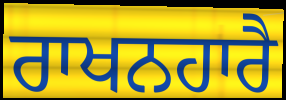
ਰਾਖਨਹਾਰੈ